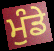
ਮੁੰਡੇ